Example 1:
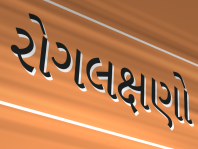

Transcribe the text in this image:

રોગલક્ષણો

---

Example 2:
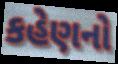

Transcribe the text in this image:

કહેણનો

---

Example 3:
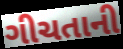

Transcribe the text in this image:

ગીચતાની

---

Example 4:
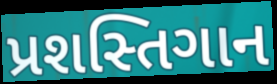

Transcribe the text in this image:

પ્રશસ્તિગાન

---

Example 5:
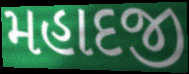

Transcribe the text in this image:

મહાદજી